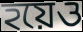
হয়েও